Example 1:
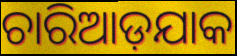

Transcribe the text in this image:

ଚାରିଆଡ଼ଯାକ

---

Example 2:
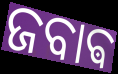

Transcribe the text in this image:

ଜବାଵ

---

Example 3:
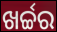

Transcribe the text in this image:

ଖର୍ଚ୍ଚର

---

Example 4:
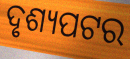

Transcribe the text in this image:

ଦୃଶ୍ୟପଟର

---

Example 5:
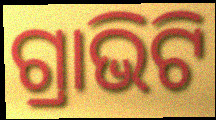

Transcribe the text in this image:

ଗ୍ରାଭିଟି